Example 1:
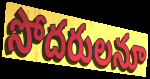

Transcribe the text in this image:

సోదరులనూ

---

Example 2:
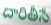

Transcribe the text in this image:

దారితీసే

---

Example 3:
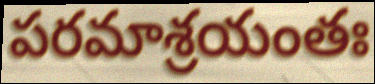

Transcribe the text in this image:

పరమాశ్రయంతః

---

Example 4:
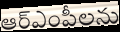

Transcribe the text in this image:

ఆర్ఎంపీలను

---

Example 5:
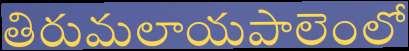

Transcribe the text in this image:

తిరుమలాయపాలెంలో